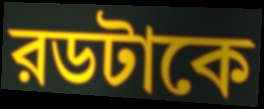
রডটাকে